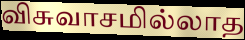
விசுவாசமில்லாத